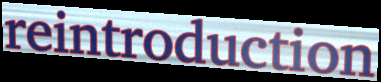
reintroduction